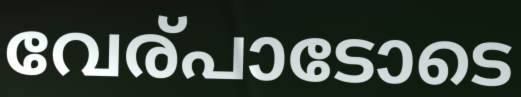
വേര്പാടോടെ